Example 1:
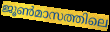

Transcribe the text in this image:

ജൂൺമാസത്തിലെ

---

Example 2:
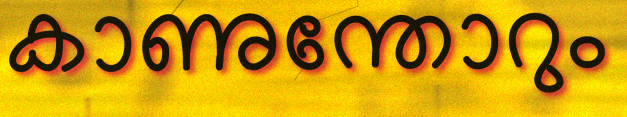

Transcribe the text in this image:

കാണുന്തോറും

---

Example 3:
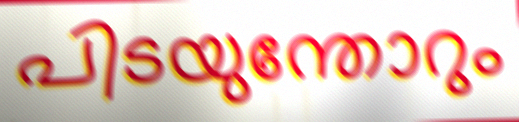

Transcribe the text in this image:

പിടയുന്തോറും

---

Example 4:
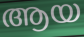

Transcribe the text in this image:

ആയ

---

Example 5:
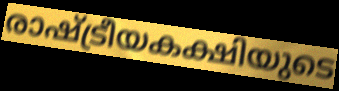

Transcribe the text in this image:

രാഷ്ട്രീയകക്ഷിയുടെ